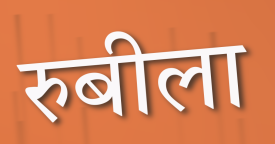
रुबीला